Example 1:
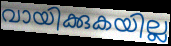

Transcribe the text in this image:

വായിക്കുകയില്ല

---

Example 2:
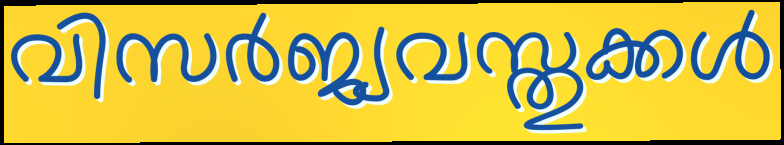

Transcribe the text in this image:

വിസർജ്യവസ്തുക്കൾ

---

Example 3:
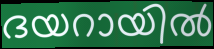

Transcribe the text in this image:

ദയറായിൽ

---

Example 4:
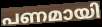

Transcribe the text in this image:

പണമായി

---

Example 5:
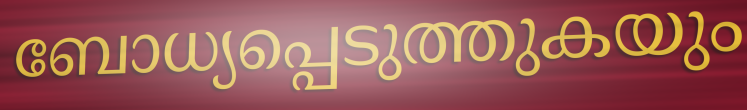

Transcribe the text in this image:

ബോധ്യപ്പെടുത്തുകയും